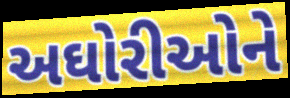
અઘોરીઓને